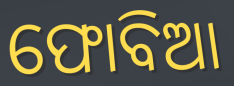
ଫୋବିଆ